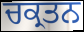
ਚਕ੍ਰਤਨ